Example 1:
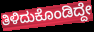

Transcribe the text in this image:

ತಿಳಿದುಕೊಂಡಿದ್ದೇ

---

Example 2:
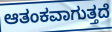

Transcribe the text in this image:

ಆತಂಕವಾಗುತ್ತದೆ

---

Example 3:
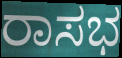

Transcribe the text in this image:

ರಾಸಭ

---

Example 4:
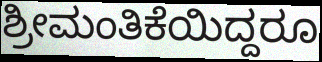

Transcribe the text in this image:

ಶ್ರೀಮಂತಿಕೆಯಿದ್ದರೂ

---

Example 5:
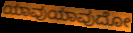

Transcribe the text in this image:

ಯಾವುಯಾವುದೋ